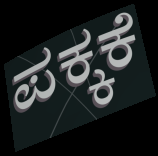
ಪಕ್ಕಕೆ